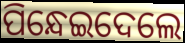
ପିନ୍ଧେଇଦେଲେ